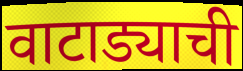
वाटाड्याची